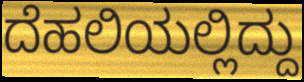
ದೆಹಲಿಯಲ್ಲಿದ್ದು